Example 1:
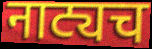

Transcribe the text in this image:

नाट्यच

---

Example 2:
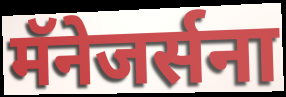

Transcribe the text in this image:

मॅनेजर्सना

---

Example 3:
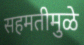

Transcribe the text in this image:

सहमतीमुळे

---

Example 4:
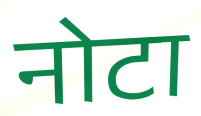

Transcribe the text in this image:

नोटा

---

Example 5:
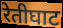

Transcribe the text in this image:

रेतीघाट